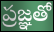
ప్రజ్ఞతో